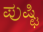
ಪುಷ್ಟಿ